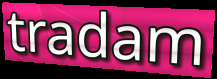
tradam